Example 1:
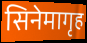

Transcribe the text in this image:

सिनेमागृह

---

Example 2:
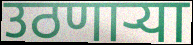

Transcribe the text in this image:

उठणाऱ्या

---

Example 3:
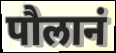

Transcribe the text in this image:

पौलानं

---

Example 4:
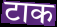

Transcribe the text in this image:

टाक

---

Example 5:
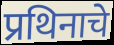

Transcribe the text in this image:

प्रथिनाचे